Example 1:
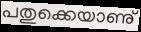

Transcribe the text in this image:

പതുക്കെയാണു്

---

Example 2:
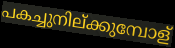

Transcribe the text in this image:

പകച്ചുനില്ക്കുമ്പോള്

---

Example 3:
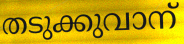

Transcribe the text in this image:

തടുക്കുവാന്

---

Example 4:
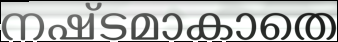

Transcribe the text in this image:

നഷ്‌ടമാകാതെ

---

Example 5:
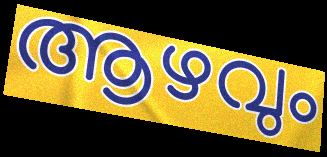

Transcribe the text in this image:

ആഴവും